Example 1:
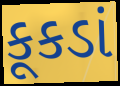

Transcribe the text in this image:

કૂકડાં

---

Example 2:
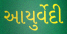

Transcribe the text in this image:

આયુર્વેદી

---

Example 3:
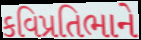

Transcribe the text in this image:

કવિપ્રતિભાને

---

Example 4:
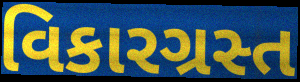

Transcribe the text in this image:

વિકારગ્રસ્ત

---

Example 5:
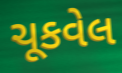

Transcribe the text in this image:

ચૂકવેલ